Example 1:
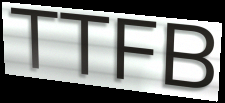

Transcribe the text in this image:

TTFB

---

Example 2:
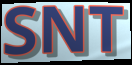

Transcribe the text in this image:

SNT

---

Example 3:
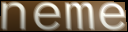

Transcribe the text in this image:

neme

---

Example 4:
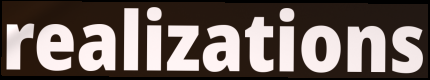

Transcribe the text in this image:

realizations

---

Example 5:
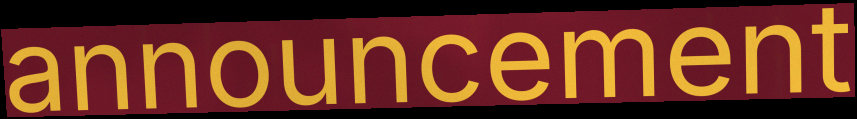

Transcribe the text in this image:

announcement